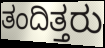
ತಂದಿತ್ತರು